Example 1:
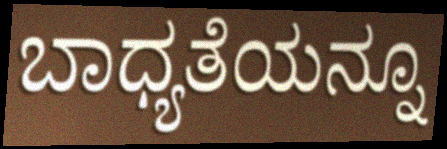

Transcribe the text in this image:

ಬಾಧ್ಯತೆಯನ್ನೂ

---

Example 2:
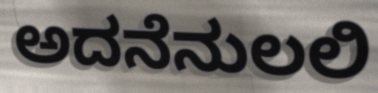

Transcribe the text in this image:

ಅದನೆನುಲಲಿ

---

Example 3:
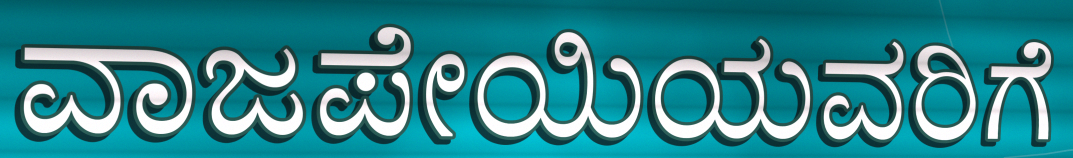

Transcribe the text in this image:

ವಾಜಪೇಯಿಯವರಿಗೆ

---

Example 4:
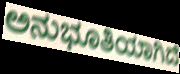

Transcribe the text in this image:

ಅನುಭೂತಿಯಾಗಿದೆ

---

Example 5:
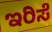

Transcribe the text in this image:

ಇರಿಸೆ